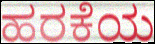
ಹರಕೆಯ